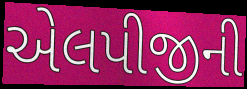
એલપીજીની